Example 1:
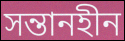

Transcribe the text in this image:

সন্তানহীন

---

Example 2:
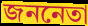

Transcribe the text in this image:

জননেতা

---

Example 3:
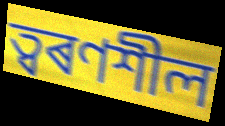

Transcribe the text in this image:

ত্বৰণশীল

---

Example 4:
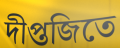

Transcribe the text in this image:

দীপ্তজিতে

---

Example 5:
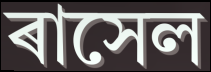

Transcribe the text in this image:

ৰাসেল